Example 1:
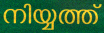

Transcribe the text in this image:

നിയ്യത്ത്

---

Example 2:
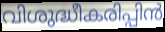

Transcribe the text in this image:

വിശുദ്ധീകരിപ്പിൻ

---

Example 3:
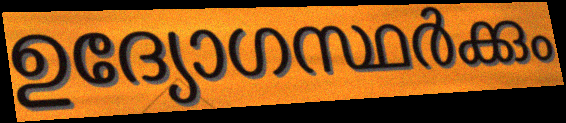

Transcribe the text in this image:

ഉദ്യോഗസ്ഥർക്കും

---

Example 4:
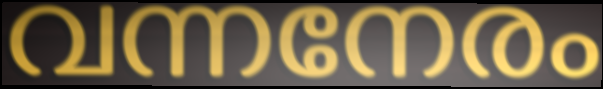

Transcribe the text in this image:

വന്നനേരം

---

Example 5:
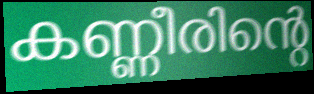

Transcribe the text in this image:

കണ്ണീരിന്റെ